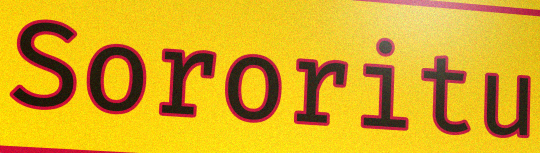
Sororitu